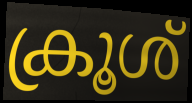
ക്രൂശ്